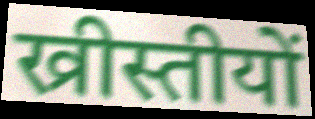
ख्रीस्तीयों